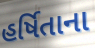
હર્ષિતાના